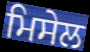
ਮਿਸੇਲ